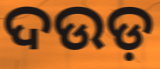
ଦଉଡ଼